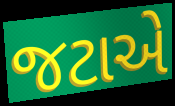
જટાએ